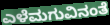
ಎಳೆಮಗುವಿನಂತೆ